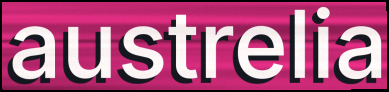
austrelia